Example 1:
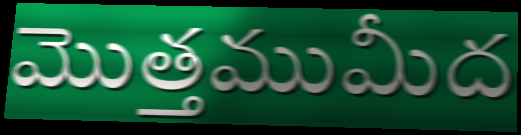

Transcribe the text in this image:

మొత్తముమీద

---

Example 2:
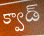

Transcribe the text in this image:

క్వాడ్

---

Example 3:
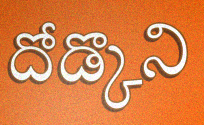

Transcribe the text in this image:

దోడ్కొని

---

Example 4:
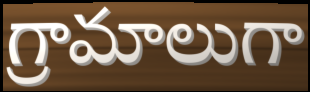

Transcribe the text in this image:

గ్రామాలుగా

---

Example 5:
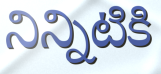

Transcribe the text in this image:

నిన్నిటికి